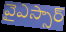
వైఎస్సార్